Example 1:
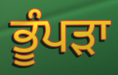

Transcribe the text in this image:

ਭੂੰਪੜਾ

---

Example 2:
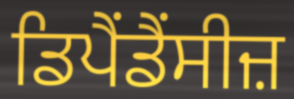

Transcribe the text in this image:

ਡਿਪੈਂਡੈਂਸੀਜ਼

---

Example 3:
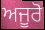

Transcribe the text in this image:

ਅਜੂਰੋ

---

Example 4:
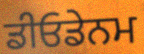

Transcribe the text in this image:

ਡੀਓਡੇਨਮ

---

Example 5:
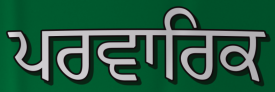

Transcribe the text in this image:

ਪਰਵਾਰਿਕ